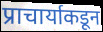
प्राचार्याकडून